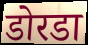
डोरडा